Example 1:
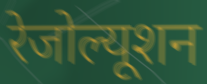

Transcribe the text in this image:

रेजोल्यूशन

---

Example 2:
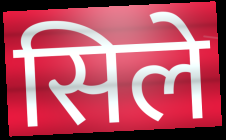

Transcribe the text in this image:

सिले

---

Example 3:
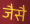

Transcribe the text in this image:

जैसै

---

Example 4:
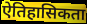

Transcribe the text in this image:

ऐतिहासिकता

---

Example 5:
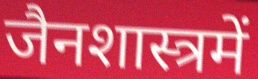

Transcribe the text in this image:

जैनशास्त्रमें